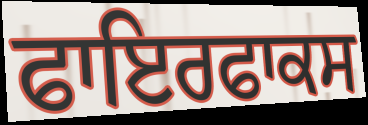
ਫਾਇਰਫਾਕਸ